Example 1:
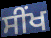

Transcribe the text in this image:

ਸੀਂਖ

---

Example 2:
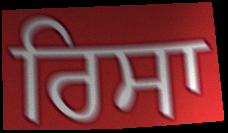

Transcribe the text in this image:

ਰਿਸਾ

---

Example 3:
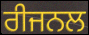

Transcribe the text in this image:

ਰੀਜਨਲ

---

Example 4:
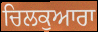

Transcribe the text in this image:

ਚਿਲਕੁਆਰਾ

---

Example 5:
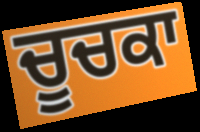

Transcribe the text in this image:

ਚੂਚਕਾ